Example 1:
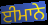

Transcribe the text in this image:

ਈਮਾਨੇ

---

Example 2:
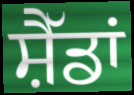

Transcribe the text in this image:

ਸ਼ੈੱਡਾਂ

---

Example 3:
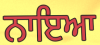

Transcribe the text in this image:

ਨਾਇਆ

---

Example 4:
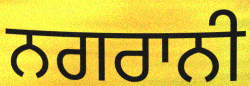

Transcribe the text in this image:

ਨਗਰਾਨੀ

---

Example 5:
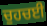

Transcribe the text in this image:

ਚੁਹਚਈ